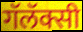
गॅलॅक्सी